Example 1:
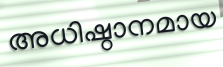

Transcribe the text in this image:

അധിഷ്ഠാനമായ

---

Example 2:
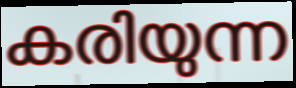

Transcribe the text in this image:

കരിയുന്ന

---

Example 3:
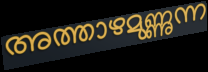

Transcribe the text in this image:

അത്താഴമുണ്ണുന്ന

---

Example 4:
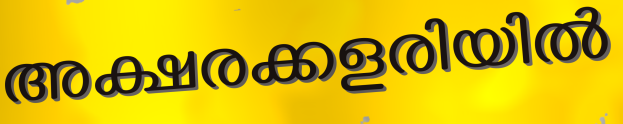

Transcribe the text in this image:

അക്ഷരക്കളരിയിൽ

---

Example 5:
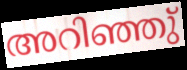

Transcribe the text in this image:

അറിഞ്ഞു്